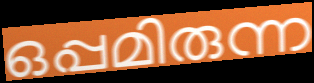
ഒപ്പമിരുന്ന